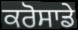
ਕਰੋਸਾਡੇ